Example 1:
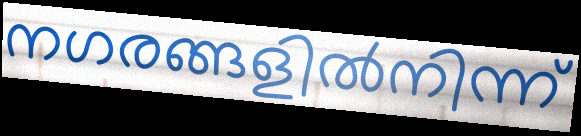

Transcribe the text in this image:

നഗരങ്ങളിൽനിന്ന്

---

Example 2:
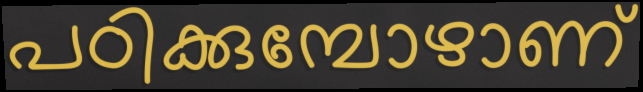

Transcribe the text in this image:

പഠിക്കുമ്പോഴാണ്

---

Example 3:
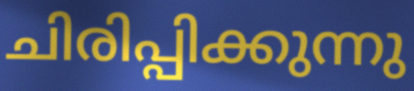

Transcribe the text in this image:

ചിരിപ്പിക്കുന്നു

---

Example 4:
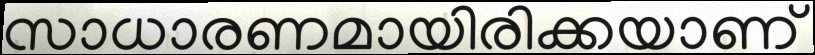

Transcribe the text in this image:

സാധാരണമായിരിക്കയാണ്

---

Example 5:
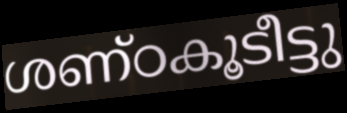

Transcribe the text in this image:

ശണ്ഠകൂടീട്ടു